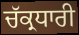
ਚੱਕ੍ਰਧਾਰੀ